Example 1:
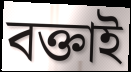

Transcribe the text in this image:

বক্তাই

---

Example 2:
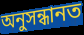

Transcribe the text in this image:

অনুসন্ধানত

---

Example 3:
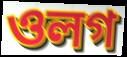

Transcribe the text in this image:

ওলগ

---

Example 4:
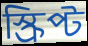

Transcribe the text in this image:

স্ক্ৰিপ্ট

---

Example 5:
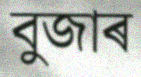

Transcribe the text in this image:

বুজাৰ